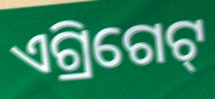
ଏଗ୍ରିଗେଟ୍